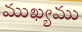
ముఖ్యము